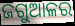
ଜଗୁଆଳର